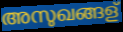
അസുഖങ്ങള്